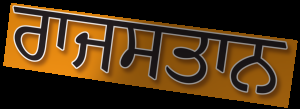
ਰਾਜਸਤਾਨ